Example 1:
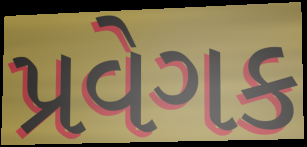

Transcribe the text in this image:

પ્રવેગક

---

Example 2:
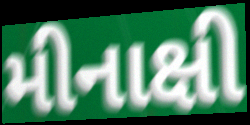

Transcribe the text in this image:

મીનાક્ષી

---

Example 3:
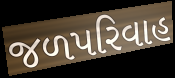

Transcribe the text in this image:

જળપરિવાહ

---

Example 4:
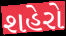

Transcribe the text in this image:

શહેરો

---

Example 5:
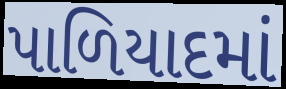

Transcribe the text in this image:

પાળિયાદમાં